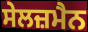
ਸੇਲਜ਼ਮੈਨ